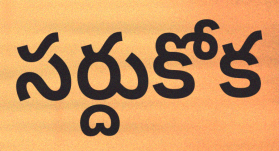
సర్దుకోక